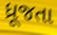
ધ્રૂજતા